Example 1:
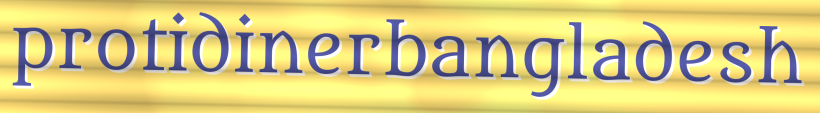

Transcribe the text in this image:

protidinerbangladesh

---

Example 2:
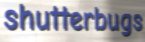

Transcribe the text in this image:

shutterbugs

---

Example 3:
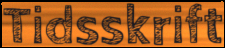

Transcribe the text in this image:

Tidsskrift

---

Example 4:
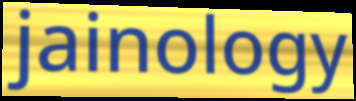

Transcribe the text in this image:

jainology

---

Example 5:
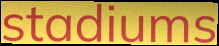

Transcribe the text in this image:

stadiums